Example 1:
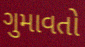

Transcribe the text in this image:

ગુમાવતો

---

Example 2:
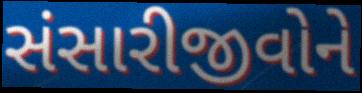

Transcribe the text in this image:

સંસારીજીવોને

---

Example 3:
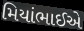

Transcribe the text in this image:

મિયાંભાઈએ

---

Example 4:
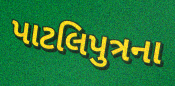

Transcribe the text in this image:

પાટલિપુત્રના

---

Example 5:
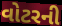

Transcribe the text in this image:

વોટરની